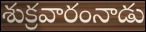
శుక్రవారంనాడు